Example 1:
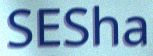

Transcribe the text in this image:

SESha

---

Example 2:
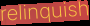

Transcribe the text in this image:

relinquish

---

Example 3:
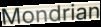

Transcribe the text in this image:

Mondrian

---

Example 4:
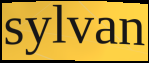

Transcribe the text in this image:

sylvan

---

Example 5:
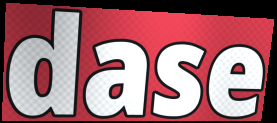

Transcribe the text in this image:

dase